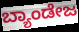
ಬ್ಯಾಂಡೇಜ